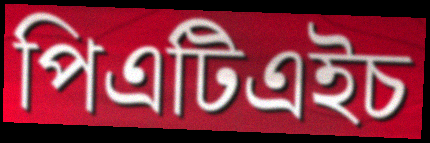
পিএটিএইচ